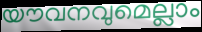
യൗവനവുമെല്ലാം